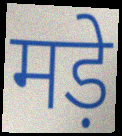
मड़े